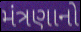
મંત્રણાનો